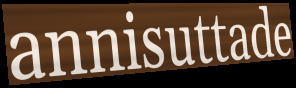
annisuttade